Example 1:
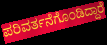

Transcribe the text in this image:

ಪರಿವರ್ತನೆಗೊಂಡಿದ್ದಾರೆ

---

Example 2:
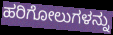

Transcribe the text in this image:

ಹರಿಗೋಲುಗಳನ್ನು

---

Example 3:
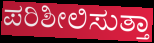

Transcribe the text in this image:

ಪರಿಶೀಲಿಸುತ್ತಾ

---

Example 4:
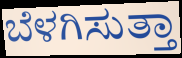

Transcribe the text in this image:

ಬೆಳಗಿಸುತ್ತಾ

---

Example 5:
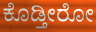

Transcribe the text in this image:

ಕೊಡ್ತೀರೋ